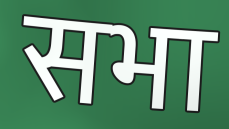
सभा